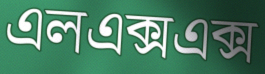
এলএক্সএক্স